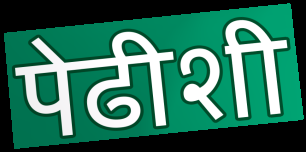
पेढीशी